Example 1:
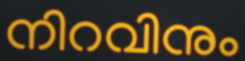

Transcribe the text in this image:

നിറവിനും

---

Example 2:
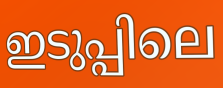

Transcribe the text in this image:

ഇടുപ്പിലെ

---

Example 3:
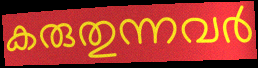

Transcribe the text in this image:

കരുതുന്നവർ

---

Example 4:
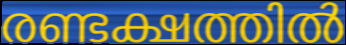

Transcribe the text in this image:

രണ്ടക്ഷത്തിൽ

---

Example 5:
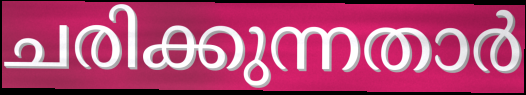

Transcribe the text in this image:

ചരിക്കുന്നതാർ